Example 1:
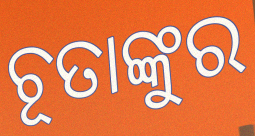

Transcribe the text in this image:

ଚୂତାଙ୍କୁର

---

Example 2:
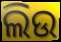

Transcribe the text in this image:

ଲିଉ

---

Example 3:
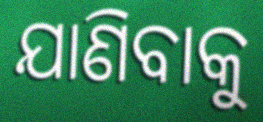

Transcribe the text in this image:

ଯାଣିବାକୁ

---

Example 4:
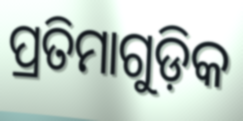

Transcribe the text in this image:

ପ୍ରତିମାଗୁଡ଼ିକ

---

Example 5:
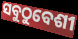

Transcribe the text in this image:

ସବୁଠୁବେଶୀ